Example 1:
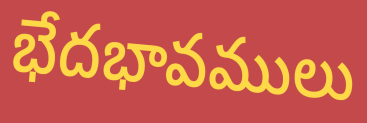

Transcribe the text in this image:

భేదభావములు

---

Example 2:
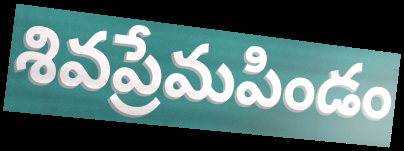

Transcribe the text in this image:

శివప్రేమపిండం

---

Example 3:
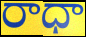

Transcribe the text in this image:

రాధా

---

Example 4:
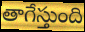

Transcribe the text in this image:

తాగేస్తుంది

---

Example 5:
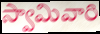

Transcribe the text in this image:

స్వామివారి